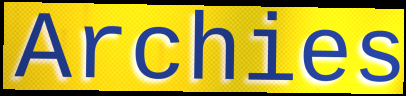
Archies